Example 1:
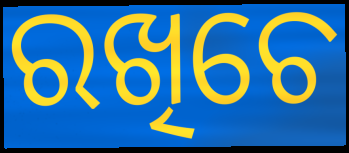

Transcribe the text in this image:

ରଖିଚେ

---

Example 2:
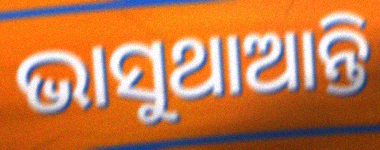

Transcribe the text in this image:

ଭାସୁଥାଆନ୍ତି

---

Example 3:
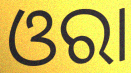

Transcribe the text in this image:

ଓରା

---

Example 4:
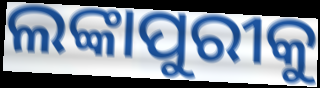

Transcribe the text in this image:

ଲଙ୍କାପୁରୀକୁ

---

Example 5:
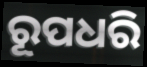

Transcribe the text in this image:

ରୂପଧରି